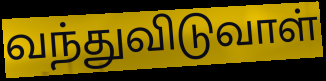
வந்துவிடுவாள்